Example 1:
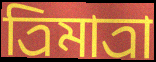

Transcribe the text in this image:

ত্রিমাত্রা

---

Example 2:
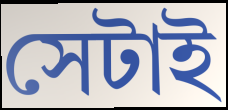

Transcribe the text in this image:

সেটাই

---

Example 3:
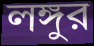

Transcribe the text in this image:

লঙ্গুর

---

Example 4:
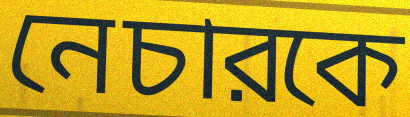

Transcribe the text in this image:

নেচারকে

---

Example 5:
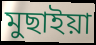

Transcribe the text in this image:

মুছাইয়া